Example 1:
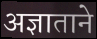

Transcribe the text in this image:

अज्ञाताने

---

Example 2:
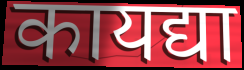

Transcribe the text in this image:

कायद्या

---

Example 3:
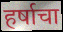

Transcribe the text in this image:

हर्षाचा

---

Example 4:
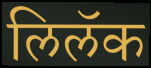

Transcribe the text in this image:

लिलॅक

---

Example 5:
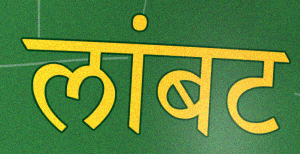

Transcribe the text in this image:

लांबट